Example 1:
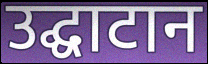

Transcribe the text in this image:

उद्घाटान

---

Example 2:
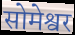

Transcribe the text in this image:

सोमेश्वर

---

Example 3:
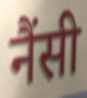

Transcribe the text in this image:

नैंसी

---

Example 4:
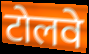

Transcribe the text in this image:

टोलवे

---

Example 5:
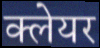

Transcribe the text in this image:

क्‍लेयर